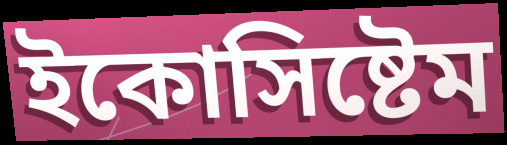
ইকোসিষ্টেম